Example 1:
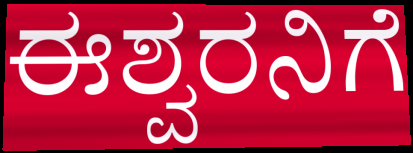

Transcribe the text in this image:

ಈಶ್ವರನಿಗೆ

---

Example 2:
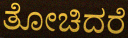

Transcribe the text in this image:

ತೋಚಿದರೆ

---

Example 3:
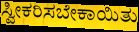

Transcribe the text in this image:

ಸ್ವೀಕರಿಸಬೇಕಾಯಿತು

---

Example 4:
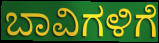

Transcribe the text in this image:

ಬಾವಿಗಳಿಗೆ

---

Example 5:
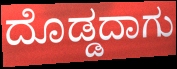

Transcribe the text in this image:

ದೊಡ್ಡದಾಗು